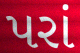
પરાં